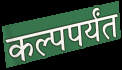
कल्पपर्यंत